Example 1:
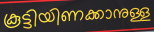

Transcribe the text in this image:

കൂട്ടിയിണക്കാനുള്ള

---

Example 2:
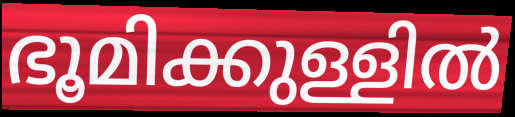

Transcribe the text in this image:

ഭൂമിക്കുള്ളിൽ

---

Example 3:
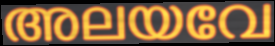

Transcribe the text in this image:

അലയവേ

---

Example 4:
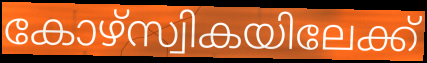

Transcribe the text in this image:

കോഴ്സ്വികയിലേക്ക്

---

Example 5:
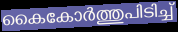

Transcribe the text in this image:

കൈകോർത്തുപിടിച്ച്